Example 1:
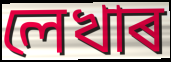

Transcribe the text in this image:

লেখাৰ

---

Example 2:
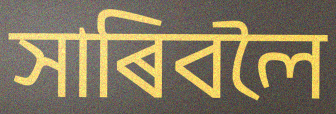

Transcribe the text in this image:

সাৰিবলৈ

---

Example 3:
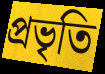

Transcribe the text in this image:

প্ৰভৃতি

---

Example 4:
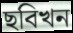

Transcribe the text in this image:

ছবিখন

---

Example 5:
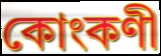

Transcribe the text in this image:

কোংকণী